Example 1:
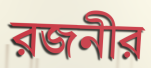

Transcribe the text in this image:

রজনীর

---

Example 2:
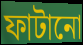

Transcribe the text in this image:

ফাটানো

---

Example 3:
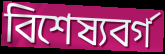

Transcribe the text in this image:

বিশেষ্যবর্গ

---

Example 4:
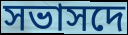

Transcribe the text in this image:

সভাসদে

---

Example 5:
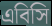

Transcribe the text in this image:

এবিসি